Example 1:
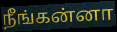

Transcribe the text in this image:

நீங்கன்னா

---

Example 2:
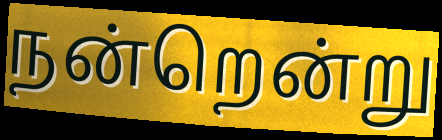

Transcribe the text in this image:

நன்றென்று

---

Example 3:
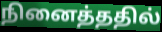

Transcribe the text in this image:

நினைத்ததில்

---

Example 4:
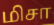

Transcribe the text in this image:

மிசா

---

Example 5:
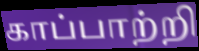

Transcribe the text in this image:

காப்பாற்றி